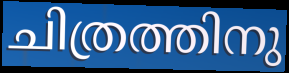
ചിത്രത്തിനു